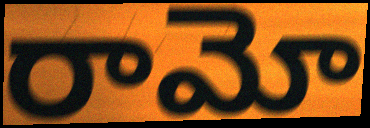
రామో